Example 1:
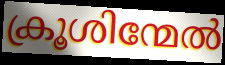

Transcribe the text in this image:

ക്രൂശിന്മേൽ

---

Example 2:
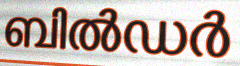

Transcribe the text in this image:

ബിൽഡർ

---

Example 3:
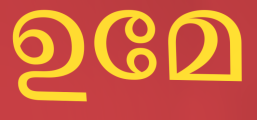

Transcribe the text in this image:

ഉമേ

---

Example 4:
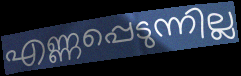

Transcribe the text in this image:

എണ്ണപ്പെടുന്നില്ല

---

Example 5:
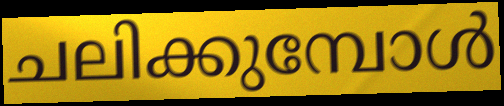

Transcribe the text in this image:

ചലിക്കുമ്പോൾ